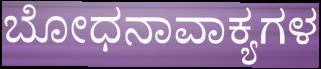
ಬೋಧನಾವಾಕ್ಯಗಳ